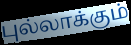
புல்லாக்கும்